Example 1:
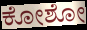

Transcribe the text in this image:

ಕೋಶೋ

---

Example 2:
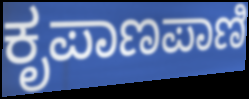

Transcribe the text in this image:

ಕೃಪಾಣಪಾಣಿ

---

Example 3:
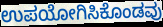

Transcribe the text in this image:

ಉಪಯೋಗಿಸಿಕೊಂಡವು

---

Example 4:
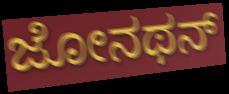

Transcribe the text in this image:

ಜೋನಥನ್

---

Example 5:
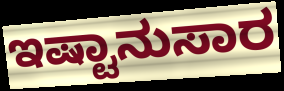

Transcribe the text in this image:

ಇಷ್ಟಾನುಸಾರ